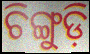
ଚିଙ୍ଗୁଡ଼ି